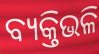
ବ୍ୟକ୍ତିଭଳି